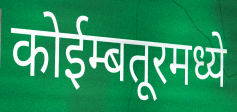
कोईम्बतूरमध्ये